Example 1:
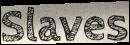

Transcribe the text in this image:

Slaves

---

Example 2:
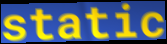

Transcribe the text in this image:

static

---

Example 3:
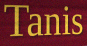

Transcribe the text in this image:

Tanis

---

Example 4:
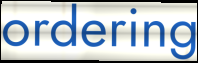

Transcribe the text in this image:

ordering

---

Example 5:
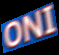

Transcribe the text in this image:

ONI